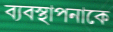
ব্যবস্থাপনাকে